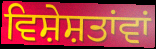
ਵਿਸ਼ੇਸ਼ਤਾਂਵਾਂ